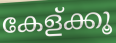
കേള്ക്കൂ